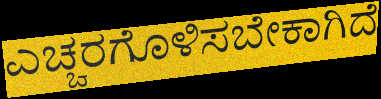
ಎಚ್ಚರಗೊಳಿಸಬೇಕಾಗಿದೆ